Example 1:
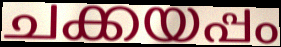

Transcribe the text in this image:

ചക്കയപ്പം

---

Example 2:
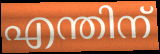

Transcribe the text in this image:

എന്തിന്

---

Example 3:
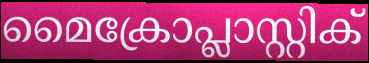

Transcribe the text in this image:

മൈക്രോപ്ലാസ്റ്റിക്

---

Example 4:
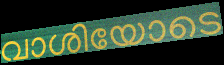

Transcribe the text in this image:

വാശിയോടെ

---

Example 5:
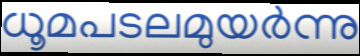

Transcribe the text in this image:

ധൂമപടലമുയർന്നു